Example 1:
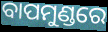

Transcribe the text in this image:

ବାପମୁଣ୍ଡରେ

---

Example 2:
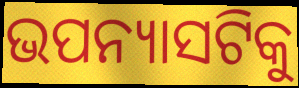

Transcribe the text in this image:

ଭପନ୍ୟାସଟିକୁ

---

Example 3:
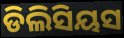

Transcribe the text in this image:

ଡିଲିସିୟସ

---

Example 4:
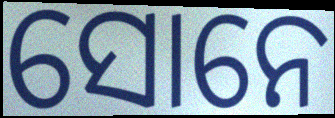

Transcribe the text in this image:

ସୋନେ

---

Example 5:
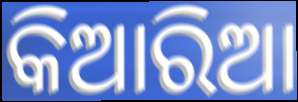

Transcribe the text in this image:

କିଆରିଆ